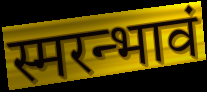
स्मरन्भावं